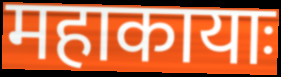
महाकायाः